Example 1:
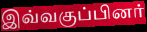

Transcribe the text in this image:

இவ்வகுப்பினர்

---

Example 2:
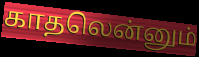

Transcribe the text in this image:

காதலென்னும்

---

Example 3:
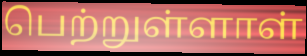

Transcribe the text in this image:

பெற்றுள்ளாள்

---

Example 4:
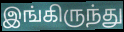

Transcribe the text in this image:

இங்கிருந்து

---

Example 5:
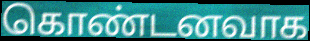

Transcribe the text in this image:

கொண்டனவாக